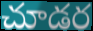
చూడర